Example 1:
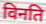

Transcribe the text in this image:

विनति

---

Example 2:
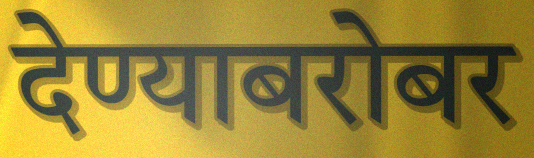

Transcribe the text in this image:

देण्याबरोबर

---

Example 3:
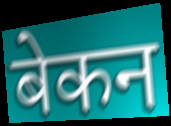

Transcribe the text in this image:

बेकन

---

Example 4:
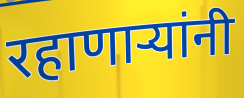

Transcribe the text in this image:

रहाणार्‍यांनी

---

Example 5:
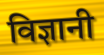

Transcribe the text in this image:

विज्ञानी